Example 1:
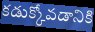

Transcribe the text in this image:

కడుక్కోవడానికి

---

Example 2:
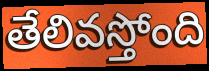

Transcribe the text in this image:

తేలివస్తోంది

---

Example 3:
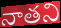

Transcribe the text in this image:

నాతని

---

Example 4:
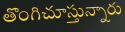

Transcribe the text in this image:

తొంగిచూస్తున్నారు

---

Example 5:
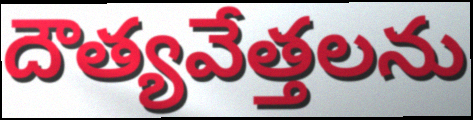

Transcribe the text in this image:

దౌత్యవేత్తలను